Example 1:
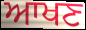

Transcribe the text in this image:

ਆਖਣ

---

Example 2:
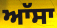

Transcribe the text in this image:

ਆੱਸਾ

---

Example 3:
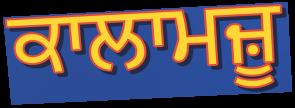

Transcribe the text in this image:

ਕਾਲਾਮਜ਼ੂ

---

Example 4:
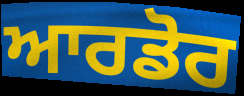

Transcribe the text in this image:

ਆਰਡੋਰ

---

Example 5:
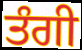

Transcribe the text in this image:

ਤੰਗੀ